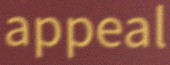
appeal